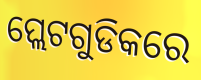
ପ୍ଲେଟଗୁଡିକରେ